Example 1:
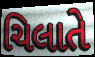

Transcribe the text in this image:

ચિલાતે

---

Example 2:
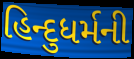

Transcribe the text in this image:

હિન્દુધર્મની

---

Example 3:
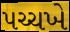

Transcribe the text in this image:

પચ્ચખે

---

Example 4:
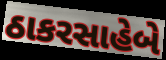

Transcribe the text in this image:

ઠાકરસાહેબે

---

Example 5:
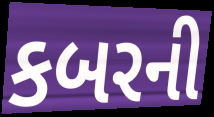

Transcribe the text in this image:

કબરની